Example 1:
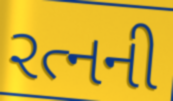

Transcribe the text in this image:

રત્નની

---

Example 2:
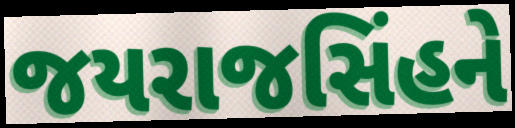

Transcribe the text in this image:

જયરાજસિંહને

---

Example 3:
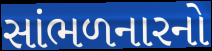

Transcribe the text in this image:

સાંભળનારનો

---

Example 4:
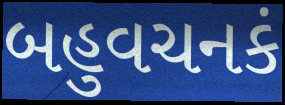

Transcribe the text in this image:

બહુવચનકં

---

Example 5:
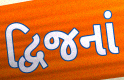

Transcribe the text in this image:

દ્વિજનાં